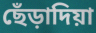
ছেঁড়াদিয়া